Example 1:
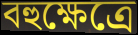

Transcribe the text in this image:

বহুক্ষেত্রে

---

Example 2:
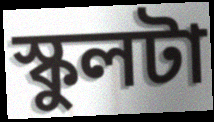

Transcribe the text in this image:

স্কুলটা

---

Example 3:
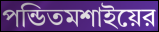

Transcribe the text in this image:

পন্ডিতমশাইয়ের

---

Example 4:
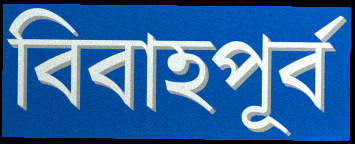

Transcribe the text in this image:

বিবাহপূর্ব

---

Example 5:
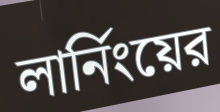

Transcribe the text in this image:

লার্নিংয়ের